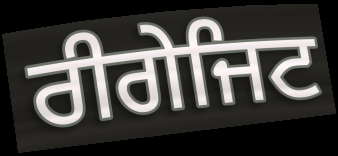
ਰੀਗੇਜਿਟ